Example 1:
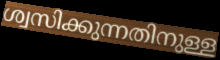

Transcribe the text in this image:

ശ്വസിക്കുന്നതിനുള്ള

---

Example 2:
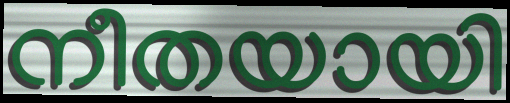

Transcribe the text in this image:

നീതയായി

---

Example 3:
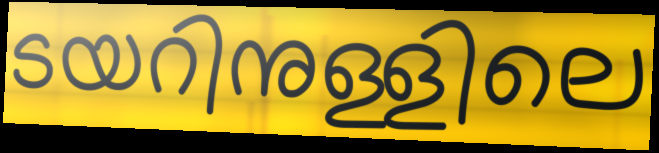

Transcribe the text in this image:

ടയറിനുള്ളിലെ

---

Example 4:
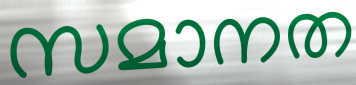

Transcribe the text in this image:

സമാനത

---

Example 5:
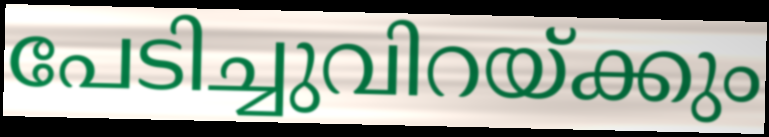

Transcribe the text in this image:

പേടിച്ചുവിറയ്ക്കും